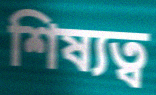
শিষ্যত্ব